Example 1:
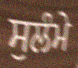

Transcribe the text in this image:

ਸੁਲੰਮੇ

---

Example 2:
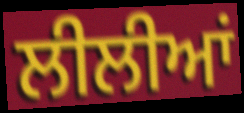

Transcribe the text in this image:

ਲੀਲੀਆਂ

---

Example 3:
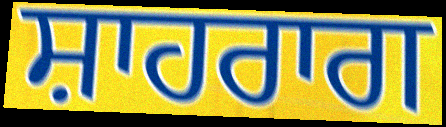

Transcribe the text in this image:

ਸ਼ਾਹਰਾਗ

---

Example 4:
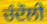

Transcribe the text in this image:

ਚੰਦੌਲੀ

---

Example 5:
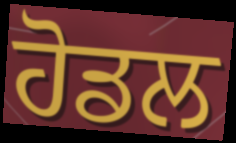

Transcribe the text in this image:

ਹੋਡਲ